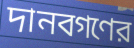
দানবগণের